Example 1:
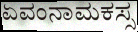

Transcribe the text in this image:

ಏವಂನಾಮಕಸ್ಸ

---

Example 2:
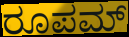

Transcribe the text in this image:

ರೂಪಮ್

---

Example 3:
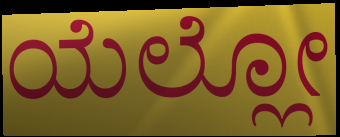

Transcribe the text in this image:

ಯೆಲ್ಲೋ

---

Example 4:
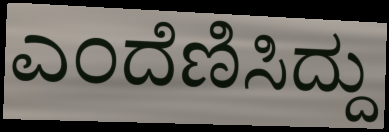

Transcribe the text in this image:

ಎಂದೆಣಿಸಿದ್ದು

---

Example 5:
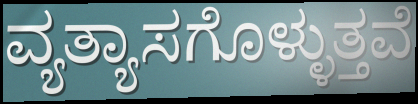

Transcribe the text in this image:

ವ್ಯತ್ಯಾಸಗೊಳ್ಳುತ್ತವೆ